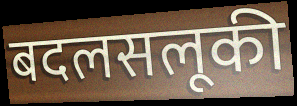
बदलसलूकी